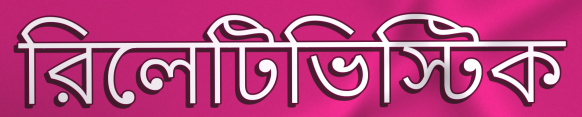
রিলেটিভিস্টিক